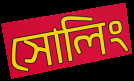
সোলিং